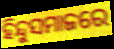
ହିନ୍ଦୁସମାଜରେ